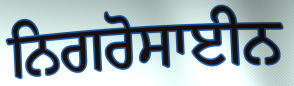
ਨਿਗਰੋਸਾਈਨ